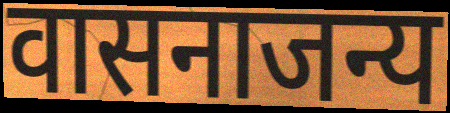
वासनाजन्य